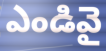
ఎండివై